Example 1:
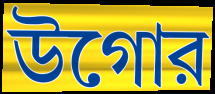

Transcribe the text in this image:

উগোর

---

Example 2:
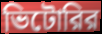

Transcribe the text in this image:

ভিটোরির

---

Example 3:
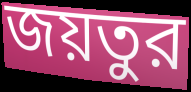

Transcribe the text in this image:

জয়তুর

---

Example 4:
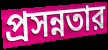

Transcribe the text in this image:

প্রসন্নতার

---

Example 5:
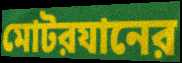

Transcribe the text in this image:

মোটরযানের